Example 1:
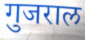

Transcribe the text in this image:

गुजराल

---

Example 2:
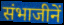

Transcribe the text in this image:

संभाजीनें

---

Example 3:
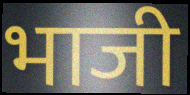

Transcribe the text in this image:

भाजी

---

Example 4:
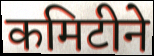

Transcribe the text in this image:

कमिटीने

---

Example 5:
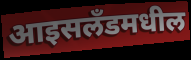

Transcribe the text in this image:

आइसलँडमधील